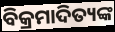
ବିକ୍ରମାଦିତ୍ୟଙ୍କ